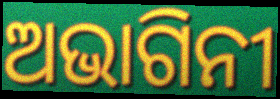
ଅଭାଗିନୀ